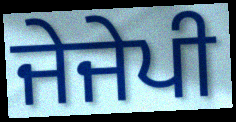
ਜੇਜੇਪੀ